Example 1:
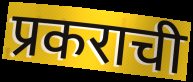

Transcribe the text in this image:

प्रकराची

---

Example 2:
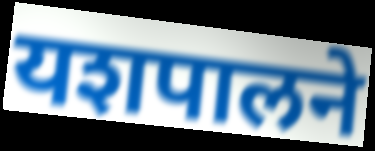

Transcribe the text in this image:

यशपालने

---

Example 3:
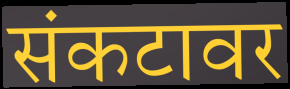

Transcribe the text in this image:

संकटावर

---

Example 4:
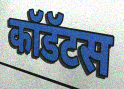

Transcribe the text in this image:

कॉडॅटस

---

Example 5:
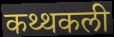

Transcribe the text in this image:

कथ्थकली